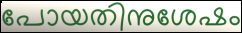
പോയതിനുശേഷം